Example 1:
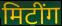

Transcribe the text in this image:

मिटींग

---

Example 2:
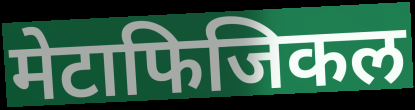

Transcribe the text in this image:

मेटाफिजिकल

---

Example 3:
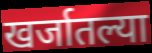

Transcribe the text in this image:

खर्जातल्या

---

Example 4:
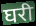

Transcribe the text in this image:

घरी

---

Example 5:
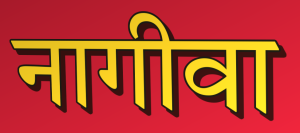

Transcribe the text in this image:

नागीवा